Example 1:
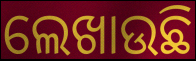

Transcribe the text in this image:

ଲେଖାଉଛି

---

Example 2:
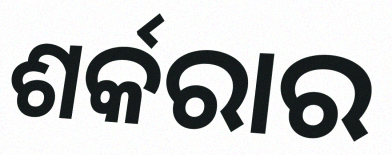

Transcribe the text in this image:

ଶର୍କରାର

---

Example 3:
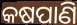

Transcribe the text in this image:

କଷପାଣି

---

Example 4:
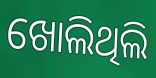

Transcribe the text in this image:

ଖୋଲିଥିଲି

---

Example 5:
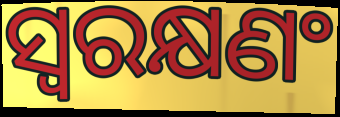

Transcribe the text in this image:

ସ୍ୱରକ୍ଷଣଂ